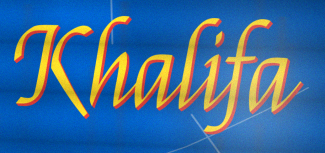
Khalifa